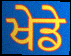
ਖੇਡੇ